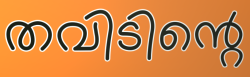
തവിടിന്റെ